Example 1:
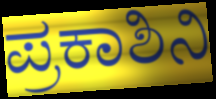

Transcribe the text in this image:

ಪ್ರಕಾಶಿನಿ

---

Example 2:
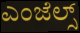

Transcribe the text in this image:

ಎಂಜೆಲ್ಸ್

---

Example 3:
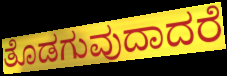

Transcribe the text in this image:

ತೊಡಗುವುದಾದರೆ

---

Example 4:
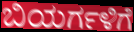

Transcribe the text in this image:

ಬಿಯರ್ಗಳಿಗೆ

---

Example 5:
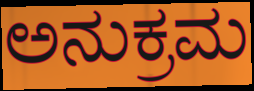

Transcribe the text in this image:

ಅನುಕ್ರಮ